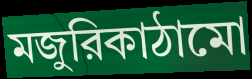
মজুরিকাঠামো